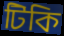
টিকি